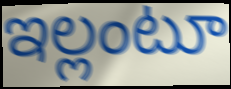
ఇల్లంటూ